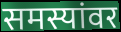
समस्यांवर